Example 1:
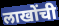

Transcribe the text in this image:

लाखोंची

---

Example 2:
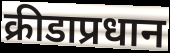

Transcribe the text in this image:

क्रीडाप्रधान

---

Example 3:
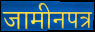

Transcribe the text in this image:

जामीनपत्र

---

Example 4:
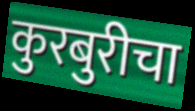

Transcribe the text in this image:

कुरबुरीचा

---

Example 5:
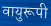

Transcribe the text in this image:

वायुरूपी